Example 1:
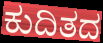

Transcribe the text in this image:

ಕುದಿತದ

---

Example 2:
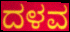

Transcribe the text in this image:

ದಳವ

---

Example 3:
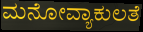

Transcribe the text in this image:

ಮನೋವ್ಯಾಕುಲತೆ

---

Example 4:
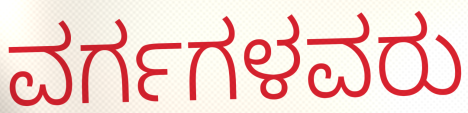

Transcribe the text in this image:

ವರ್ಗಗಳವರು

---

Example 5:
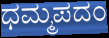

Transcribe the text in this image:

ಧಮ್ಮಪದಂ